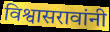
विश्वासरावांनी